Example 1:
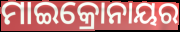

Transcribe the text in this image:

ମାଇକ୍ରୋନାୟର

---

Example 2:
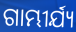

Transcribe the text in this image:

ଗାମ୍ଭୀର୍ଯ୍ୟ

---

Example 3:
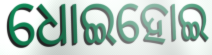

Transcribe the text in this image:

ଧୋଇହୋଇ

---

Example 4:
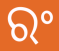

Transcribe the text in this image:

ରଂ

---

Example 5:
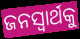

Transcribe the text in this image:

ଜନସ୍ବାର୍ଥକୁ